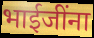
भाईजींना